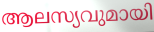
ആലസ്യവുമായി